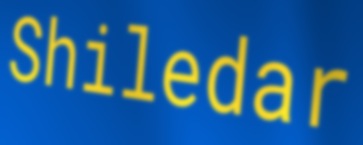
Shiledar